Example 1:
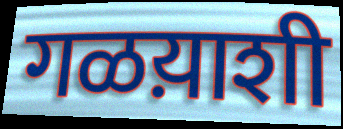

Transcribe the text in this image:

गळय़ाशी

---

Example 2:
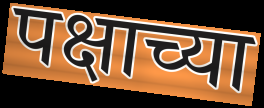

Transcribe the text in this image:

पक्षाच्या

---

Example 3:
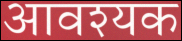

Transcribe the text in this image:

आवश्यक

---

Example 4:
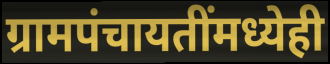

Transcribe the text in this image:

ग्रामपंचायतींमध्येही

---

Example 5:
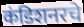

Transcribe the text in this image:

कंडिशनरचे